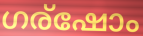
ഗര്ഷോം